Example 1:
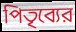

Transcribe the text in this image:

পিতৃব্যের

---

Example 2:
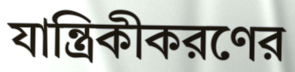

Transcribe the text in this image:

যান্ত্রিকীকরণের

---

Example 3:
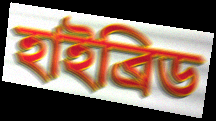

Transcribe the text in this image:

হাইব্রিড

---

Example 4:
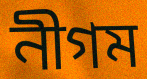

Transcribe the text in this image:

নীগম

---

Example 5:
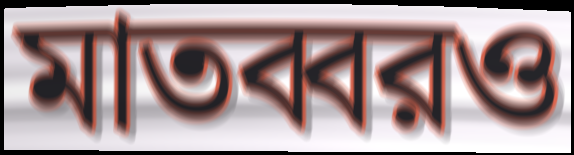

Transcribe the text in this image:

মাতব্বরও